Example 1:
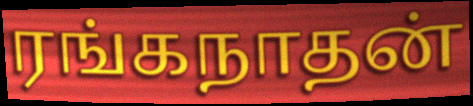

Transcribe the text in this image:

ரங்கநாதன்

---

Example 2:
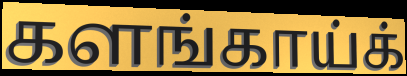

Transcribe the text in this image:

களங்காய்க்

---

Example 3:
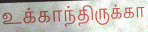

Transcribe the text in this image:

உக்காந்திருக்கா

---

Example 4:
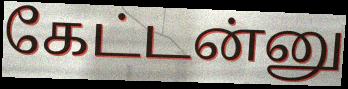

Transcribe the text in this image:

கேட்டன்னு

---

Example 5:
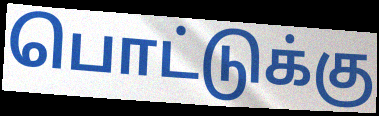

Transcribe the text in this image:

பொட்டுக்கு